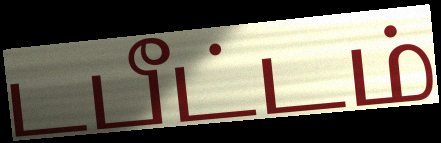
டபீட்டம்